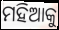
ମହିଆକୁ